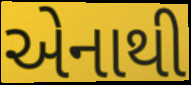
એનાથી